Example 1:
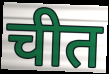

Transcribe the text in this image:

चीत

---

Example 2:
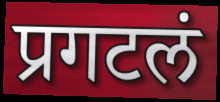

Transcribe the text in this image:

प्रगटलं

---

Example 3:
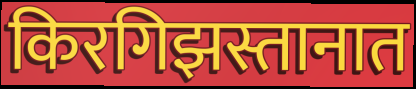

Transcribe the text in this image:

किरगिझस्तानात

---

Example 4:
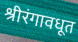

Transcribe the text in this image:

श्रीरंगावधूत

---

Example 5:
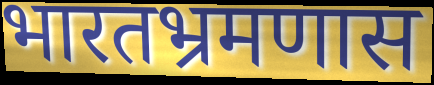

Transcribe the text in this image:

भारतभ्रमणास